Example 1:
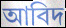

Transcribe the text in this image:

আবিদ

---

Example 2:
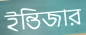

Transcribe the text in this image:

ইন্তিজার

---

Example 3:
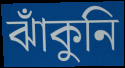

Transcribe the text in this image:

ঝাঁকুনি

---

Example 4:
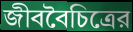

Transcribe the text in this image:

জীববৈচিত্রের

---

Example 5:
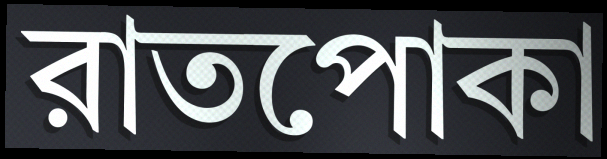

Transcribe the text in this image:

রাতপোকা